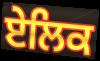
ਏਲਿਕ